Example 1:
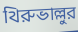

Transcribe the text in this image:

থিরুভাল্লুর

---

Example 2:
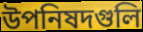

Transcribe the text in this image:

উপনিষদগুলি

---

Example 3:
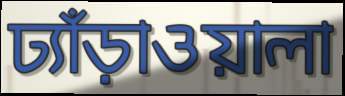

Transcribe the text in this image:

ঢ্যাঁড়াওয়ালা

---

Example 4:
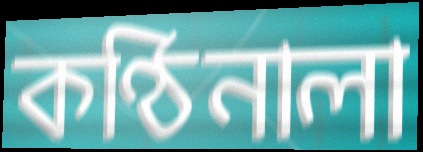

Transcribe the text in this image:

কণ্ঠিনালা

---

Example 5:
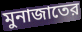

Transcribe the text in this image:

মুনাজাতের